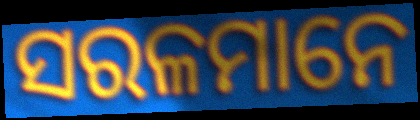
ସରଳମାନେ